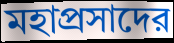
মহাপ্রসাদের